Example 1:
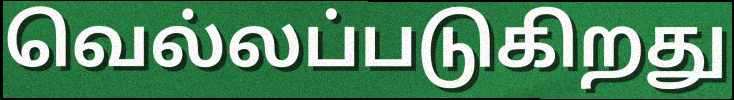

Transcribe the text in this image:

வெல்லப்படுகிறது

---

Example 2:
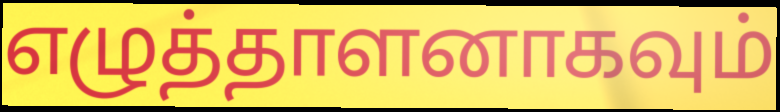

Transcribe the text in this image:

எழுத்தாளனாகவும்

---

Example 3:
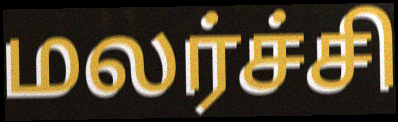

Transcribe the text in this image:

மலர்ச்சி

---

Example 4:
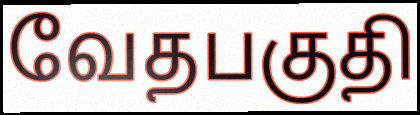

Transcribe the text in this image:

வேதபகுதி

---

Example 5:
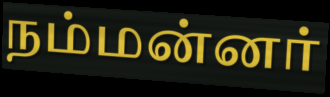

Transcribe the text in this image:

நம்மன்னர்